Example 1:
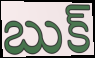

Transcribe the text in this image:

బుక్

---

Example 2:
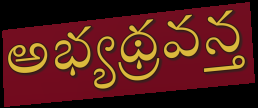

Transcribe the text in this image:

అభ్యథ్రవన్త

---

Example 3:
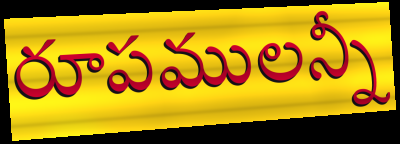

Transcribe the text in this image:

రూపములన్నీ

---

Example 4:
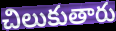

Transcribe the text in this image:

చిలుకుతారు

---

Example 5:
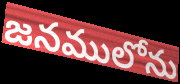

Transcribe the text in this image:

జనములోను